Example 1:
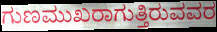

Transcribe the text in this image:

ಗುಣಮುಖರಾಗುತ್ತಿರುವವರ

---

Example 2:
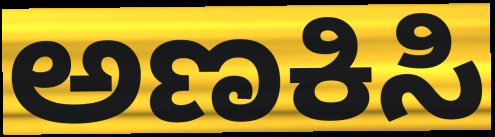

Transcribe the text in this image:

ಅಣಕಿಸಿ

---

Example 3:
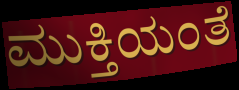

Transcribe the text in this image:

ಮುಕ್ತಿಯಂತೆ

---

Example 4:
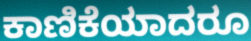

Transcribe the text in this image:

ಕಾಣಿಕೆಯಾದರೂ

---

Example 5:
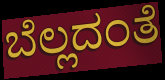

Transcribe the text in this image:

ಬೆಲ್ಲದಂತೆ